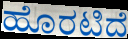
ಹೊರಟಿದೆ